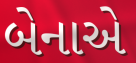
બેનાએ